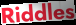
Riddles